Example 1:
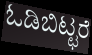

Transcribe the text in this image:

ಓಡಿಬಿಟ್ಟರೆ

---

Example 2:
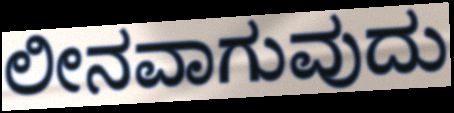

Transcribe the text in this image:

ಲೀನವಾಗುವುದು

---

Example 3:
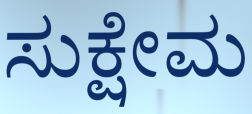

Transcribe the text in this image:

ಸುಕ್ಷೇಮ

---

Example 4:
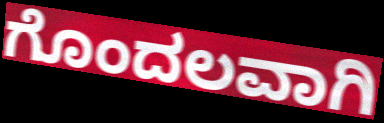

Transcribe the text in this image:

ಗೊಂದಲವಾಗಿ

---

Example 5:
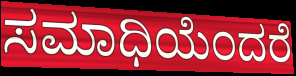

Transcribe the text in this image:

ಸಮಾಧಿಯೆಂದರೆ